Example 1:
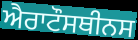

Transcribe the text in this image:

ਐਰਾਟੌਸਥੀਨਸ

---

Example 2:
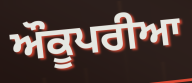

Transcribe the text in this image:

ਔਕੂਪਰੀਆ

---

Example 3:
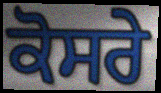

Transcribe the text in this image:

ਕੋਸਰੇ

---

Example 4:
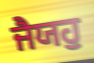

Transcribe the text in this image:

ਜੈਯਹੁ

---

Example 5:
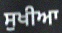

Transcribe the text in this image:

ਸੁਖੀਆ